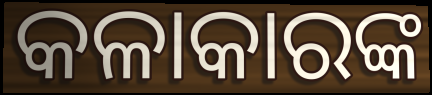
କଳାକାରଙ୍କ